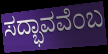
ಸದ್ಭಾವವೆಂಬ